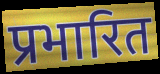
प्रभारित